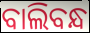
ବାଲିବନ୍ଧ